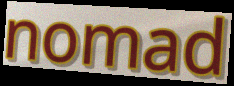
nomad